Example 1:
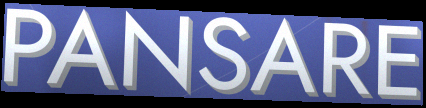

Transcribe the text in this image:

PANSARE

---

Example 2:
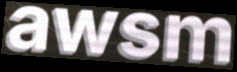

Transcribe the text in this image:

awsm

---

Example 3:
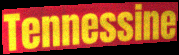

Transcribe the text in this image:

Tennessine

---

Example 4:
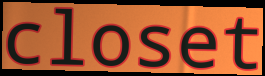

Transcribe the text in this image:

closet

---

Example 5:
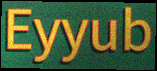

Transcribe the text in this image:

Eyyub